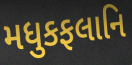
મધુકફલાનિ